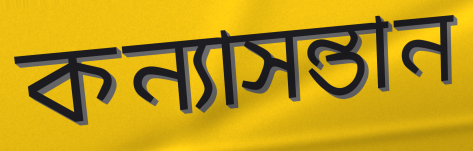
কন্যাসন্তান